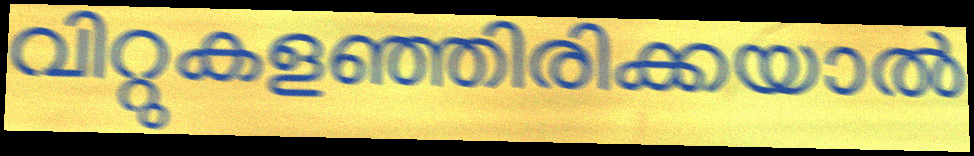
വിറ്റുകളഞ്ഞിരിക്കയാൽ